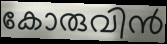
കോരുവിൻ